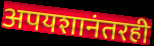
अपयशानंतरही